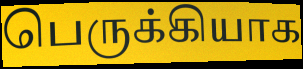
பெருக்கியாக